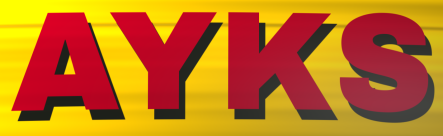
AYKS